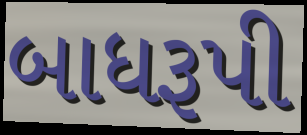
બાધરૂપી